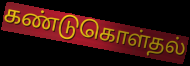
கண்டுகொள்தல்